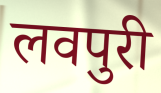
लवपुरी